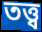
তত্ত্ব